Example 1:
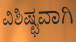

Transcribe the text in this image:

ವಿಶಿಷ್ಟವಾಗಿ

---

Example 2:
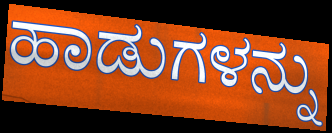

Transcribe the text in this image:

ಹಾಡುಗಳನ್ನು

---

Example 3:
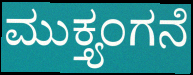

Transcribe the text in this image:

ಮುಕ್ತ್ಯಂಗನೆ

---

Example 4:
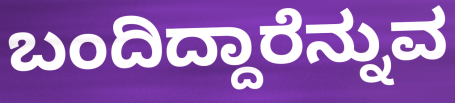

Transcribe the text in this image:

ಬಂದಿದ್ದಾರೆನ್ನುವ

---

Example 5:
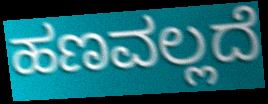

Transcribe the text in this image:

ಹಣವಲ್ಲದೆ